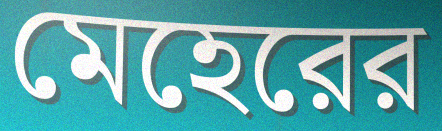
মেহেরের